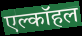
एल्कॉहल